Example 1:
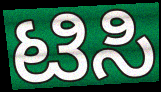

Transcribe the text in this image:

ಟಿಸಿ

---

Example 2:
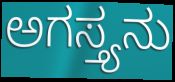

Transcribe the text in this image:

ಅಗಸ್ತ್ಯನು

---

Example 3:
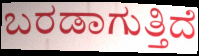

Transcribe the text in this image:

ಬರಡಾಗುತ್ತಿದೆ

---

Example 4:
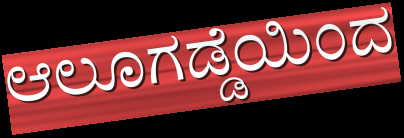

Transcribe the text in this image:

ಆಲೂಗಡ್ಡೆಯಿಂದ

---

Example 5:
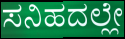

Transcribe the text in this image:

ಸನಿಹದಲ್ಲೇ